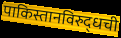
पाकिस्तानविरुद्धची